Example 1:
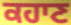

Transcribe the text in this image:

ਕਹਾਣ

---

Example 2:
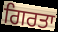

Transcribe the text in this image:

ਗਿਰਤਾ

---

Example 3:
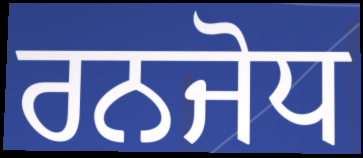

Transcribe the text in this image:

ਰਨਜੋਧ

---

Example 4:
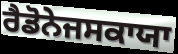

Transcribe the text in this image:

ਰੈਡੋਨੇਜਸਕਾਯਾ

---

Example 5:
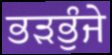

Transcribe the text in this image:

ਭੜਭੁੰਜੇ